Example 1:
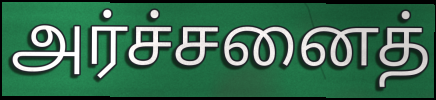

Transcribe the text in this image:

அர்ச்சனைத்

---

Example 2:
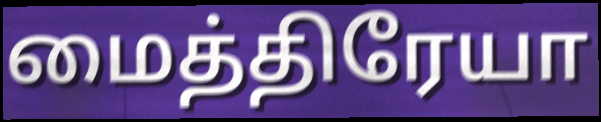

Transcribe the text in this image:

மைத்திரேயா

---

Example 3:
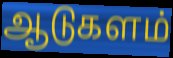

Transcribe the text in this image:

ஆடுகளம்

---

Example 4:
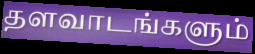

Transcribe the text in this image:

தளவாடங்களும்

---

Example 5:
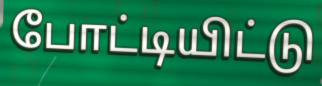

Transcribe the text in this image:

போட்டியிட்டு